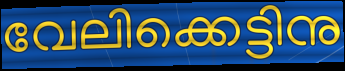
വേലിക്കെട്ടിനു